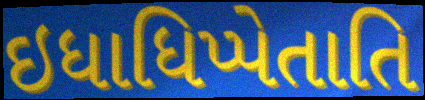
ઇધાધિપ્પેતાતિ